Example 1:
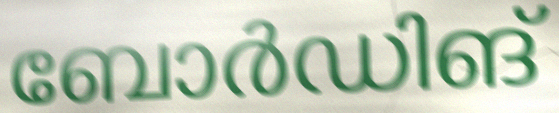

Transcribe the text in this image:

ബോർഡിങ്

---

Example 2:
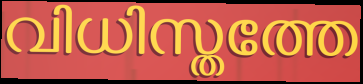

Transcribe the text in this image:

വിധിസ്തത്തേ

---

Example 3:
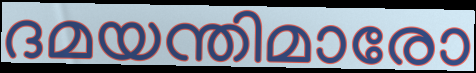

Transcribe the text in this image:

ദമയന്തിമാരോ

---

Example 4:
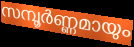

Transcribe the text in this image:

സമ്പൂർണ്ണമായും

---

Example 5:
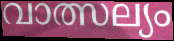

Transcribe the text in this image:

വാത്സല്യം